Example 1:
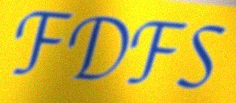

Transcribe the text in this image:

FDFS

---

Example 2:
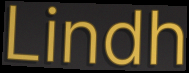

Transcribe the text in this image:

Lindh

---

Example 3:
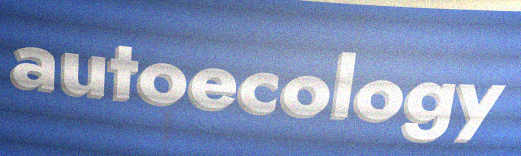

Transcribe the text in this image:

autoecology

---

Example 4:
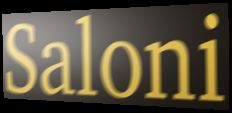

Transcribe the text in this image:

Saloni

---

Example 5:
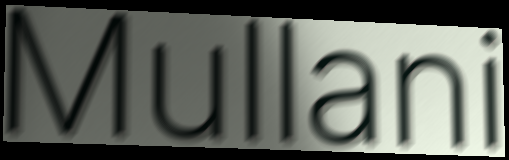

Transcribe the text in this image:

Mullani